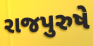
રાજપુરુષે